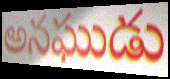
అనఘుడు